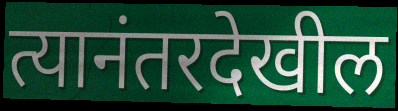
त्यानंतरदेखील